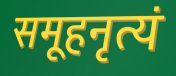
समूहनृत्यं